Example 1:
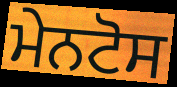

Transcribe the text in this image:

ਮੇਨਟੋਸ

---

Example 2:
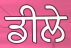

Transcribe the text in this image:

ਡੀਲੇ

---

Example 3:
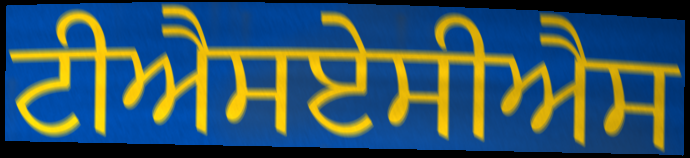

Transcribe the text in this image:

ਟੀਐਸਏਸੀਐਸ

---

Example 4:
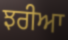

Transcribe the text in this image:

ਝਰੀਆ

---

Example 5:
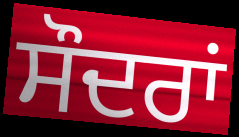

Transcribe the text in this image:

ਸੌਦਰਾਂ